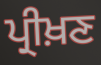
ਪ੍ਰੀਖ਼ਣ